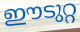
ഈടുറ്റ